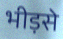
भीड़से